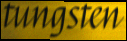
tungsten